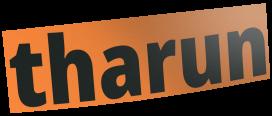
tharun